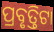
ପ୍ରବୃତ୍ତିଟା